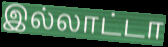
இல்லாட்டா